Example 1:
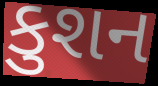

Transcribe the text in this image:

કુશન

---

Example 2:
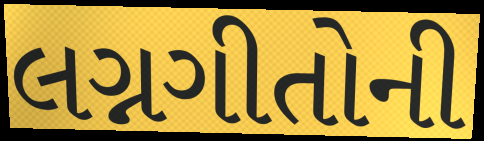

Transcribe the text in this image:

લગ્નગીતોની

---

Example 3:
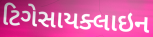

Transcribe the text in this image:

ટિગેસાયક્લાઇન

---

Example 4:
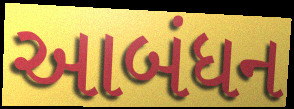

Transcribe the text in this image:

આબંધન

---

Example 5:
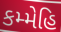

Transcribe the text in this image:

કમ્મેહિ